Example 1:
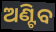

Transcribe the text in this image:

ଅଣ୍ଟିବ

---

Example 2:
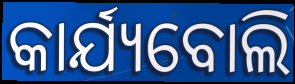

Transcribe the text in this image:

କାର୍ଯ୍ୟବୋଲି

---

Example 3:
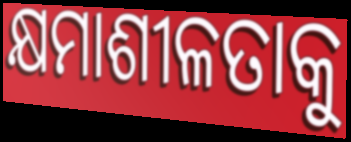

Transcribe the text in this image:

କ୍ଷମାଶୀଳତାକୁ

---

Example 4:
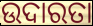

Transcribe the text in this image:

ଉଦାରତା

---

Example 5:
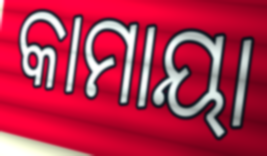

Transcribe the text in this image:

କାମାୟା